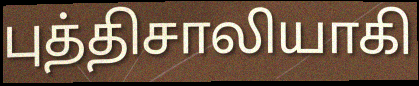
புத்திசாலியாகி